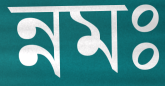
ন্নমঃ